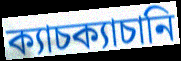
ক্যাচক্যাচানি